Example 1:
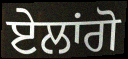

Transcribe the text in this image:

ਏਲਾਂਗੋ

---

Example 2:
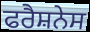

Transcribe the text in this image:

ਫਰੈਸ਼ਨੇਸ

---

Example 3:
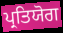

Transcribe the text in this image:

ਪ੍ਰਤਿਯੋਗ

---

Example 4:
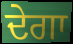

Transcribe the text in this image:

ਦੇਗਾ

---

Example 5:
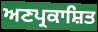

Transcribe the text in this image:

ਅਣਪ੍ਰਕਾਸ਼ਿਤ